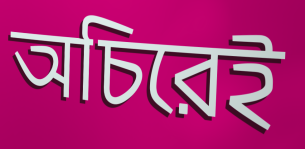
অচিরেই